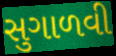
સુગાળવી